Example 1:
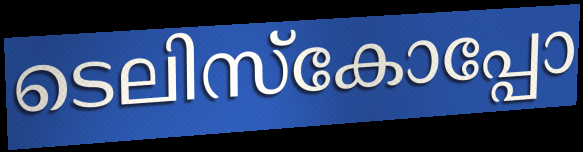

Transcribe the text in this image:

ടെലിസ്കോപ്പോ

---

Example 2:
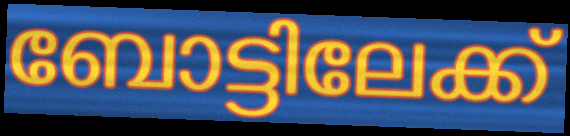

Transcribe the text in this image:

ബോട്ടിലേക്ക്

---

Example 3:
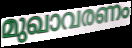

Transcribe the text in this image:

മുഖാവരണം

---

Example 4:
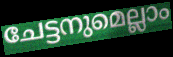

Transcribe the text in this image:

ചേട്ടനുമെല്ലാം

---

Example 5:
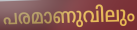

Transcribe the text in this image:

പരമാണുവിലും